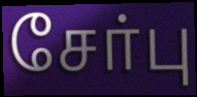
சேர்பு